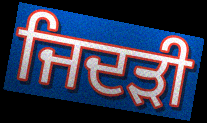
ਜਿਦੜੀ